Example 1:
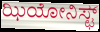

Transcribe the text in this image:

ಝಿಯೋನಿಸ್ಟ್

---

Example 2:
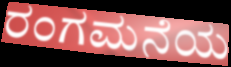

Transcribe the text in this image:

ರಂಗಮನೆಯ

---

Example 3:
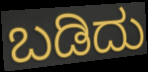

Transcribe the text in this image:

ಬಡಿದು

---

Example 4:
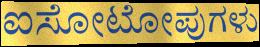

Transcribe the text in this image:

ಐಸೋಟೋಪುಗಳು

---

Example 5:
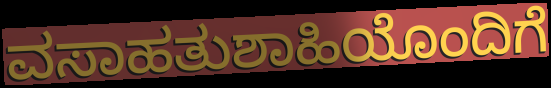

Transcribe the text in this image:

ವಸಾಹತುಶಾಹಿಯೊಂದಿಗೆ